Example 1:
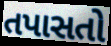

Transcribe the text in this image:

તપાસતો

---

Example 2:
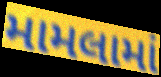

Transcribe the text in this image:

મામલામાં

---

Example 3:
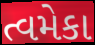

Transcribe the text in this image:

ત્વમેકા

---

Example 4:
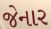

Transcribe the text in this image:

જેનાર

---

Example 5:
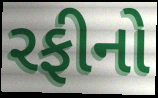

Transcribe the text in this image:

રફીનો